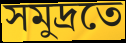
সমুদ্ৰতে